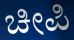
ಚೀಪಿ